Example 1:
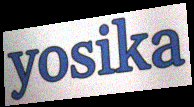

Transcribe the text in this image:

yosika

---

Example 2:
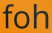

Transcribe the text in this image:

foh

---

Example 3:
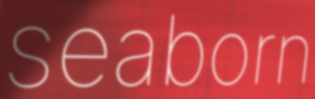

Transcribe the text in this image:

seaborn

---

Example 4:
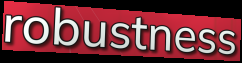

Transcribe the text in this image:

robustness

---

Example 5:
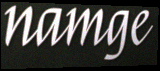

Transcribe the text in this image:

namge